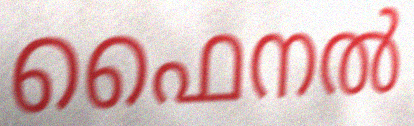
ഫൈനൽ